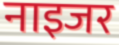
नाइजर